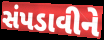
સંપડાવીને